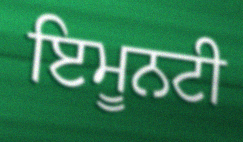
ਇਮੂਨਟੀ